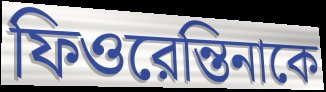
ফিওরেন্তিনাকে